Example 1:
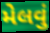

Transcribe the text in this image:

મેલવું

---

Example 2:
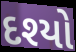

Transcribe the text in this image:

દશ્યો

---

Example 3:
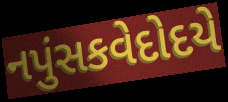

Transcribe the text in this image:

નપુંસકવેદોદયે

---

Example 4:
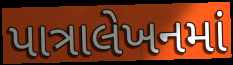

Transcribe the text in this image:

પાત્રાલેખનમાં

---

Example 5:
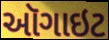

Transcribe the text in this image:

ઑગાઇટ